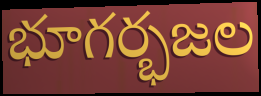
భూగర్భజల